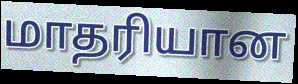
மாதரியான